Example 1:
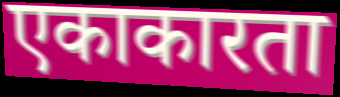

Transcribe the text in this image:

एकाकारता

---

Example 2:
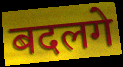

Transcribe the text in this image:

बदलगे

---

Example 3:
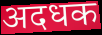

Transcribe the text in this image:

अदधक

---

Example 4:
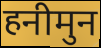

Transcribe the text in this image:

हनीमुन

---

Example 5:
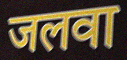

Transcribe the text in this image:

जलवा